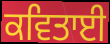
ਕਵਿਤਾਈ